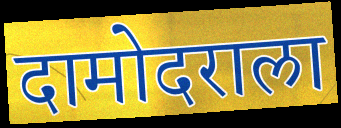
दामोदराला